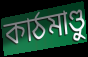
কাঠমাণ্ডু